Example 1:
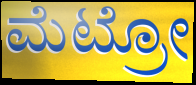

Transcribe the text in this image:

ಮೆಟ್ರೋ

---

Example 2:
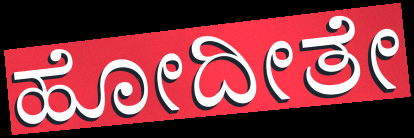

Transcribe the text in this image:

ಹೋದೀತೇ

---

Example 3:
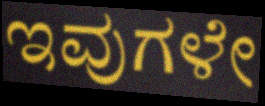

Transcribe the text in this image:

ಇವುಗಳೇ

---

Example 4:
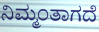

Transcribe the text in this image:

ನಿಮ್ಮಂತಾಗದೆ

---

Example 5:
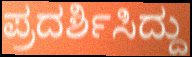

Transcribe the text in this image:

ಪ್ರದರ್ಶಿಸಿದ್ದು